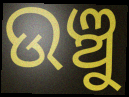
ଉଞ୍ଚୁ